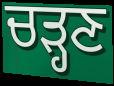
ਚੜ੍ਹਣ